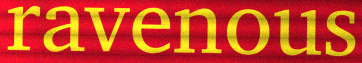
ravenous